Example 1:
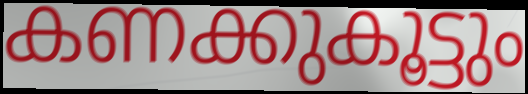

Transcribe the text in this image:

കണക്കുകൂട്ടും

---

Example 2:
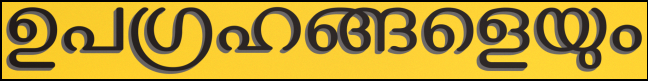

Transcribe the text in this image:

ഉപഗ്രഹങ്ങളെയും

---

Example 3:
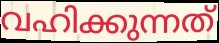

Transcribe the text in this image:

വഹിക്കുന്നത്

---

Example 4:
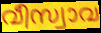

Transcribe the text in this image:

വീസ്വാവ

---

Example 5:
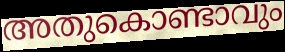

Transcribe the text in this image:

അതുകൊണ്ടാവും